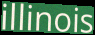
illinois